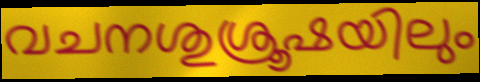
വചനശുശ്രൂഷയിലും